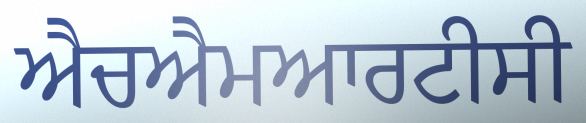
ਐਚਐਮਆਰਟੀਸੀ